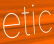
etic